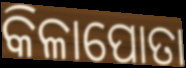
କିଳାପୋତା